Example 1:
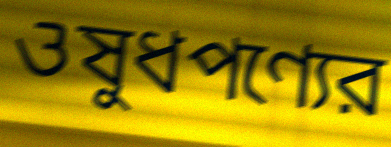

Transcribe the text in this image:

ওষুধপণ্যের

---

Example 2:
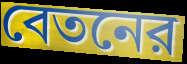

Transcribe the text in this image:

বেতনের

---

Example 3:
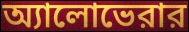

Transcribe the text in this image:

অ্যালোভেরার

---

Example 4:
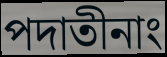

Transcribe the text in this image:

পদাতীনাং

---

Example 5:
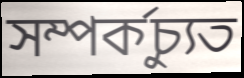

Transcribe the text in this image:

সম্পর্কচ্যুত